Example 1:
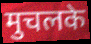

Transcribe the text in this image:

मुचलके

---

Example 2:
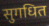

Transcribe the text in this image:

सुगधित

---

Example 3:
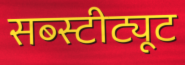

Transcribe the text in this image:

सब्स्टीट्यूट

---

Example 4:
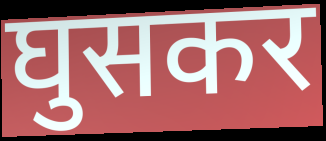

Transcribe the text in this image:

घुसकर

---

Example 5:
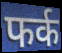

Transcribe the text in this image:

फर्क